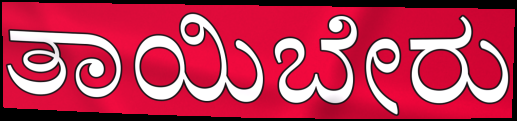
ತಾಯಿಬೇರು